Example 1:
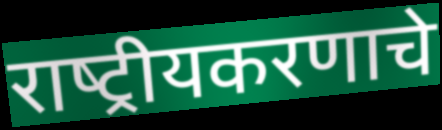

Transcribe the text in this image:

राष्ट्रीयकरणाचे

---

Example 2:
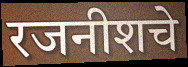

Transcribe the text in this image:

रजनीशचे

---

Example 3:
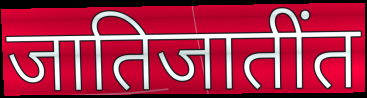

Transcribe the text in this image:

जातिजातींत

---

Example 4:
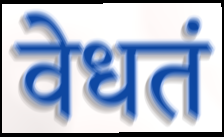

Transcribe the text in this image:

वेधतं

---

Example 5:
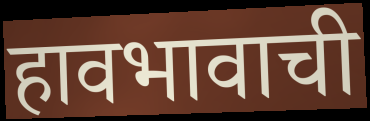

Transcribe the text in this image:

हावभावाची